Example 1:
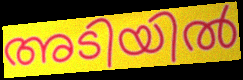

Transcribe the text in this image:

അടിയിൽ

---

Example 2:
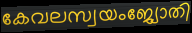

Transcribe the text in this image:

കേവലസ്വയംജ്യോതി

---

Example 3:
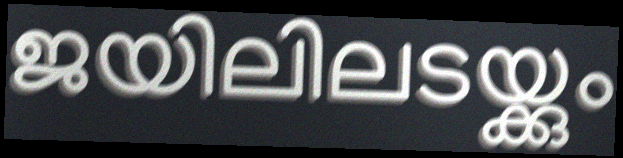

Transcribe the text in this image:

ജയിലിലടയ്ക്കും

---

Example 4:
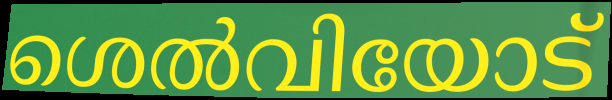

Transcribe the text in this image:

ശെൽവിയോട്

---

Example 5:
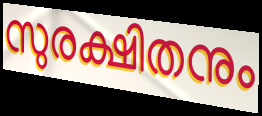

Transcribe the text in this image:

സുരക്ഷിതനും